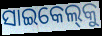
ସାଇକେଲ୍‌କୁ